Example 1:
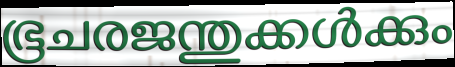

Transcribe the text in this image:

ഭൂചരജന്തുക്കൾക്കും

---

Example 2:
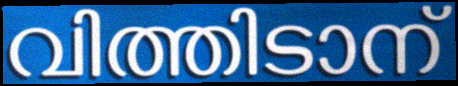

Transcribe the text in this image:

വിത്തിടാന്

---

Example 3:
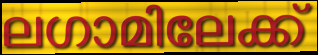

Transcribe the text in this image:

ലഗാമിലേക്ക്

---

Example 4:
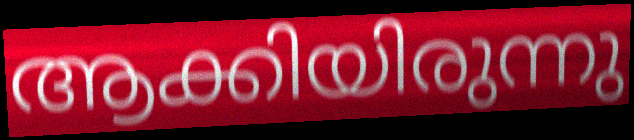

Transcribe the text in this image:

ആക്കിയിരുന്നു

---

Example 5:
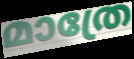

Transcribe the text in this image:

മാത്രേ